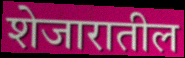
शेजारातील